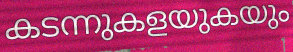
കടന്നുകളയുകയും